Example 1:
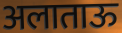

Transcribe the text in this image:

अलाताऊ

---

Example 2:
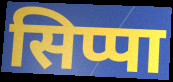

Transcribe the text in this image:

सिप्पा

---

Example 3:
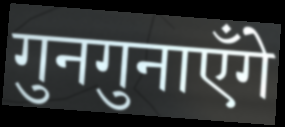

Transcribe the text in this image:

गुनगुनाएँगे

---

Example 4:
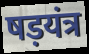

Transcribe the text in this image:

षड़यंत्र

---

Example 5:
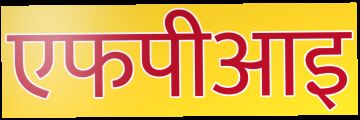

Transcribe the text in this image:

एफपीआइ